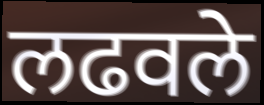
लढवले